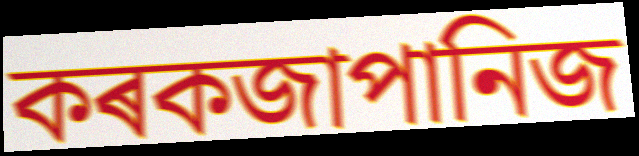
কৰকজাপানিজ